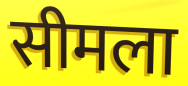
सीमला